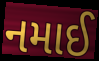
નમાઈ